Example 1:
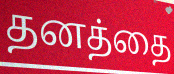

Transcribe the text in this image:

தனத்தை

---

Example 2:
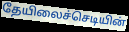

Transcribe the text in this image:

தேயிலைச்செடியின்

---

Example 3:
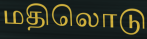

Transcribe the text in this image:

மதிலொடு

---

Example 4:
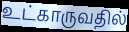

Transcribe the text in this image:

உட்காருவதில்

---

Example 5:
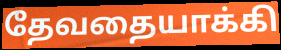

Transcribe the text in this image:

தேவதையாக்கி